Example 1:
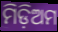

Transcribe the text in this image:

ମିଡ଼ିଅମ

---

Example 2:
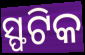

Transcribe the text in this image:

ସ୍ଫଟିକ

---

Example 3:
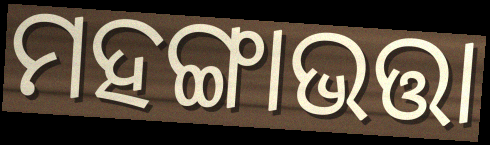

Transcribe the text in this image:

ମହଙ୍ଗାଭତ୍ତା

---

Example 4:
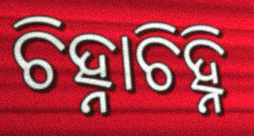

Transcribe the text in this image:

ଚିହ୍ନାଚିହ୍ନି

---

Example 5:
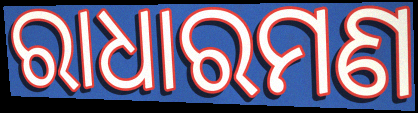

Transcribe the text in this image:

ରାଧାରମଣ